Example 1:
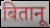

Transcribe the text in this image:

बितानू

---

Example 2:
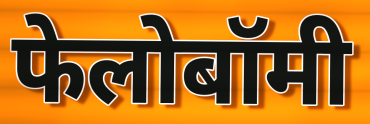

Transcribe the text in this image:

फेलोबॉमी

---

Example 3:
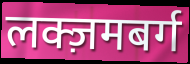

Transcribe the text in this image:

लक्ज़मबर्ग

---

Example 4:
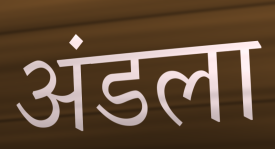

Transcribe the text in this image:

अंडला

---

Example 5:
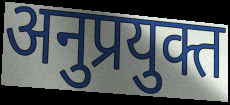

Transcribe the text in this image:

अनुप्रयुक्त